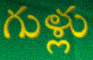
గుళ్లు